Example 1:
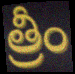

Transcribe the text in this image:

త్రీం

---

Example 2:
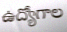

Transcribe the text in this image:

ఉద్యోగాల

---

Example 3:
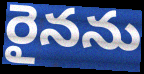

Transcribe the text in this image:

రైనను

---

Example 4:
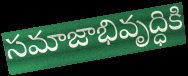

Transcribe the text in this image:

సమాజాభివృద్ధికి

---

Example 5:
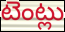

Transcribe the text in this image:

టెంట్లు